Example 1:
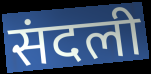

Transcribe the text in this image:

संदली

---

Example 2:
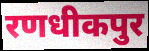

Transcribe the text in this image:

रणधीकपुर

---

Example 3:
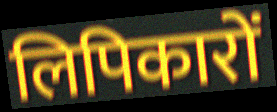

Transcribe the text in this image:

लिपिकारों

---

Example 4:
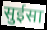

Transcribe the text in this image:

सुईसा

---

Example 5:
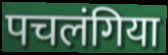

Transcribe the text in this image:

पचलंगिया